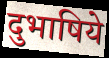
दुभाषिये